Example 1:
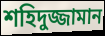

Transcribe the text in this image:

শহিদুজ্জামান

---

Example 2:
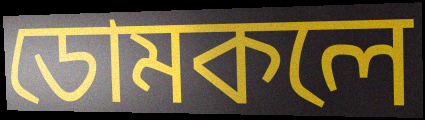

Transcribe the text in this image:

ডোমকলে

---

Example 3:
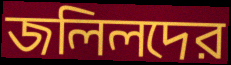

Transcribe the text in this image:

জলিলদের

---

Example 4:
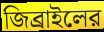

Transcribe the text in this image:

জিব্রাইলের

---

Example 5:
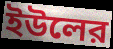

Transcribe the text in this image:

ইউলের